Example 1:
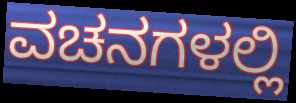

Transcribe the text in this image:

ವಚನಗಳಲ್ಲಿ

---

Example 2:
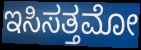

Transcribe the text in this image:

ಇಸಿಸತ್ತಮೋ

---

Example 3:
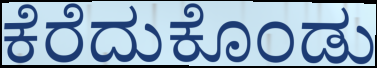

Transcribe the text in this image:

ಕೆರೆದುಕೊಂಡು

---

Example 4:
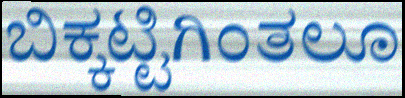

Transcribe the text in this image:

ಬಿಕ್ಕಟ್ಟಿಗಿಂತಲೂ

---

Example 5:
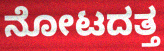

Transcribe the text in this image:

ನೋಟದತ್ತ